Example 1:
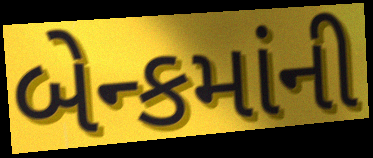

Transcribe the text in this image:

બેન્કમાંની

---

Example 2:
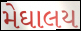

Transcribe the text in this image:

મેઘાલય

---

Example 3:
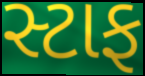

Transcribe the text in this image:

સ્ટાફ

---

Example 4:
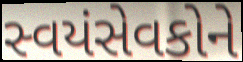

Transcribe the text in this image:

સ્વયંસેવકોને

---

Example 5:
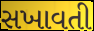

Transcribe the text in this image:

સખાવતી